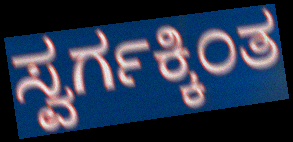
ಸ್ವರ್ಗಕ್ಕಿಂತ